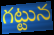
గట్టున